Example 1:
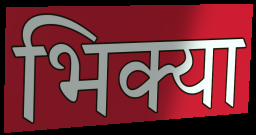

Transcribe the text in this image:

भिक्या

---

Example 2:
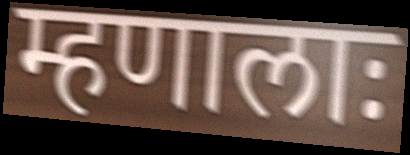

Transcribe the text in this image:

म्हणालाः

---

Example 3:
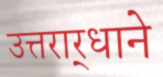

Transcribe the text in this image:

उत्तरार्धाने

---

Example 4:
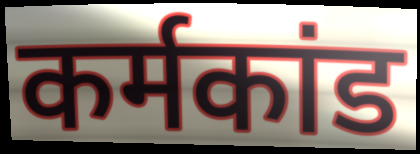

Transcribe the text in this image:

कर्मकांड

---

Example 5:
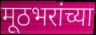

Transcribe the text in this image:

मूठभरांच्या